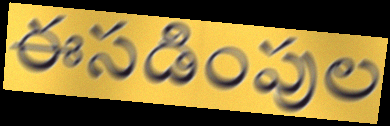
ఈసడింపుల